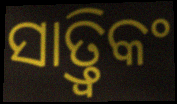
ସାତ୍ତ୍ୱିକଂ